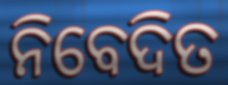
ନିବେଦିତ